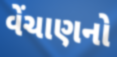
વેંચાણનો